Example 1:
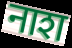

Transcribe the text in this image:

नाश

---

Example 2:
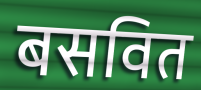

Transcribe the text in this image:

बसवित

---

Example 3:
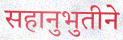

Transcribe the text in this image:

सहानुभुतीने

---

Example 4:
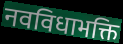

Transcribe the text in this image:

नवविधाभक्ति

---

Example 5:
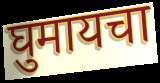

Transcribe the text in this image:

घुमायचा